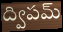
ద్విపమ్